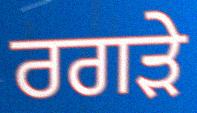
ਰਗੜੇ